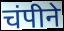
चंपीने